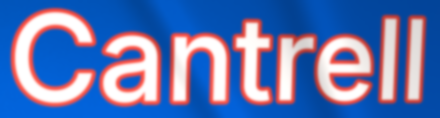
Cantrell